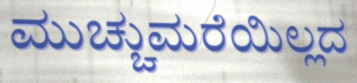
ಮುಚ್ಚುಮರೆಯಿಲ್ಲದ